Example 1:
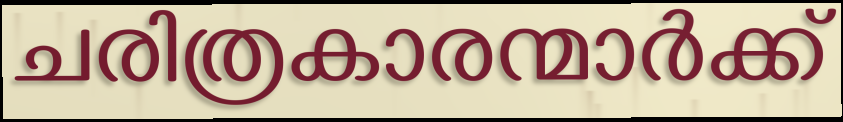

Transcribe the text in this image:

ചരിത്രകാരന്മാർക്ക്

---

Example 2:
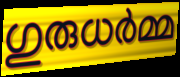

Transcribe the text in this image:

ഗുരുധർമ്മ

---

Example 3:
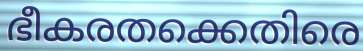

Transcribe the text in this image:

ഭീകരതക്കെതിരെ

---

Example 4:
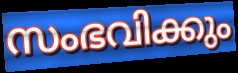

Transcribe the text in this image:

സംഭവിക്കും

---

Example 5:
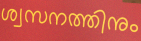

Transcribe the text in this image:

ശ്വസനത്തിനും